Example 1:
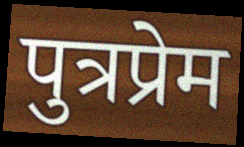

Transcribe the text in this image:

पुत्रप्रेम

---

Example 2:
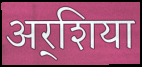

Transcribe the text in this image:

अर्शिया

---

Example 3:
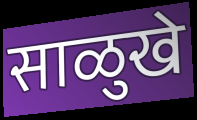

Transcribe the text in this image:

साळुखे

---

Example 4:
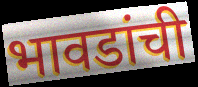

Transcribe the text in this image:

भावडांची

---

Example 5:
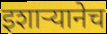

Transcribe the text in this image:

इशाऱ्यानेच